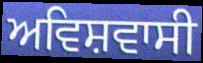
ਅਵਿਸ਼ਵਾਸੀ